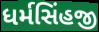
ધર્મસિંહજી